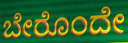
ಬೇರೊಂದೇ